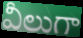
వీలుగా